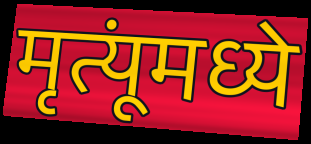
मृत्यूंमध्ये